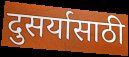
दुसर्यासाठी